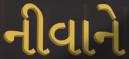
નીવાને